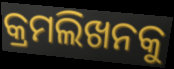
କ୍ରମଲିଖନକୁ